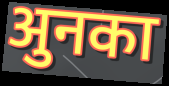
अुनका